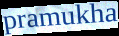
pramukha